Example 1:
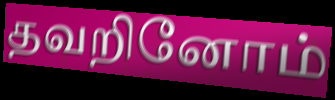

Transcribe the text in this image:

தவறினோம்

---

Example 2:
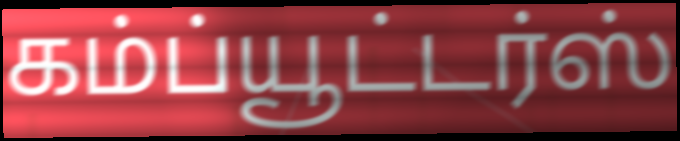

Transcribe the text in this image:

கம்ப்யூட்டர்ஸ்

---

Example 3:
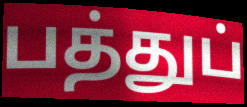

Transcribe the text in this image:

பத்துப்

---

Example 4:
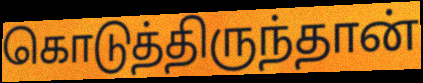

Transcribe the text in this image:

கொடுத்திருந்தான்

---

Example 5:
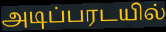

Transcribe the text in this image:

அடிப்பரடயில்